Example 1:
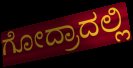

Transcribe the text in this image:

ಗೋದ್ರಾದಲ್ಲಿ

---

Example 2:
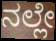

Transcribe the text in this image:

ನಲ್ಲೇ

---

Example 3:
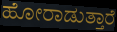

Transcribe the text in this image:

ಹೋರಾಡುತ್ತಾರೆ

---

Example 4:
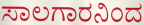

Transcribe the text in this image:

ಸಾಲಗಾರನಿಂದ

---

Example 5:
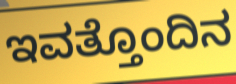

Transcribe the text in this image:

ಇವತ್ತೊಂದಿನ